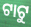
ଟାଟୁ